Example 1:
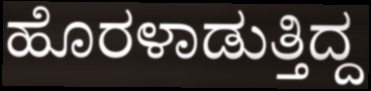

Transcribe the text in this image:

ಹೊರಳಾಡುತ್ತಿದ್ದ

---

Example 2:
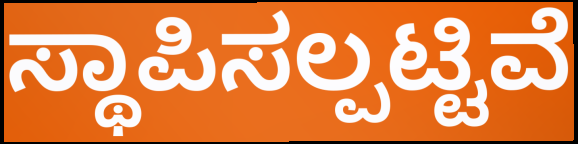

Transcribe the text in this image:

ಸ್ಥಾಪಿಸಲ್ಪಟ್ಟಿವೆ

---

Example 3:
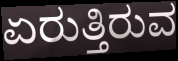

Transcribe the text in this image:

ಏರುತ್ತಿರುವ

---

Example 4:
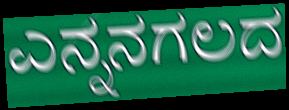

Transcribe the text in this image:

ಎನ್ನನಗಲದ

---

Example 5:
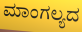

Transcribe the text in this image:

ಮಾಂಗಲ್ಯದ